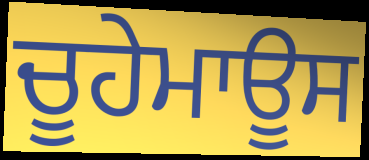
ਚੂਹੇਮਾਊਸ